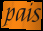
pais